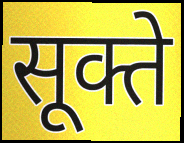
सूक्ते